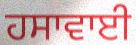
ਹਸਾਵਾਈ